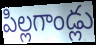
పిల్లగాండ్లు